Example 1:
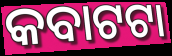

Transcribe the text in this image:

କବାଟଟା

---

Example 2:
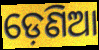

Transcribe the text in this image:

ଡ଼େଣିଆ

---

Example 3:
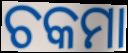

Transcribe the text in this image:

ଚକମା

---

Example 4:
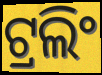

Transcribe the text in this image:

ଟ୍ରଲିଂ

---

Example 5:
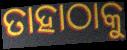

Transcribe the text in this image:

ତାହାଠାକୁ